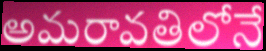
అమరావతిలోనే